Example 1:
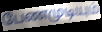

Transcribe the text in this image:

பேணமுடியும்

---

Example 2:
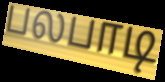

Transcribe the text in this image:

பலபாடி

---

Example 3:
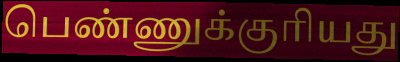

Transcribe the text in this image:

பெண்ணுக்குரியது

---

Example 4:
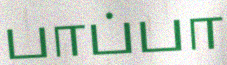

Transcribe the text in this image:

பாப்பா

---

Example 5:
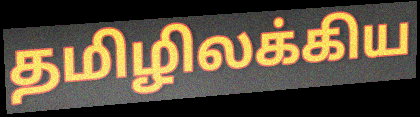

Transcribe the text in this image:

தமிழிலக்கிய